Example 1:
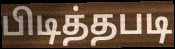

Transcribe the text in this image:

பிடித்தபடி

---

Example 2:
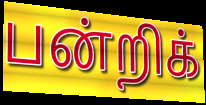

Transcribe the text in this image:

பன்றிக்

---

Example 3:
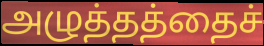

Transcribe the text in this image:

அழுத்தத்தைச்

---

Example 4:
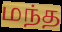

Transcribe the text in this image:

மந்த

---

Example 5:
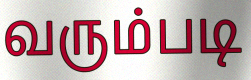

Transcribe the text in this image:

வரும்படி